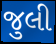
જુલી